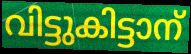
വിട്ടുകിട്ടാന്